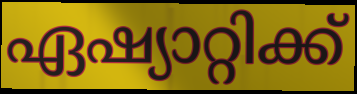
ഏഷ്യാറ്റിക്ക്